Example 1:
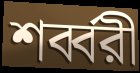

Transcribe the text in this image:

শর্ব্বরী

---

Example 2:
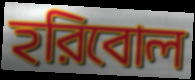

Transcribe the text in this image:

হরিবোল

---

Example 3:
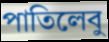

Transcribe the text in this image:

পাতিলেবু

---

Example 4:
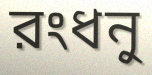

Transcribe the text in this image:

রংধনু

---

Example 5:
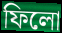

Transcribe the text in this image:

ফিলো